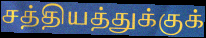
சத்தியத்துக்குக்